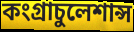
কংগ্রাচুলেশান্স